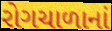
રોગચાળાનાં